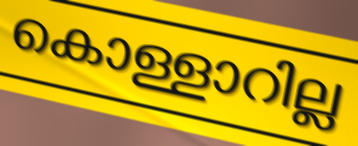
കൊള്ളാറില്ല